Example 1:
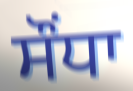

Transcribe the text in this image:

ਸੌਂਧਾ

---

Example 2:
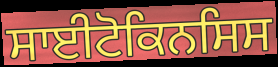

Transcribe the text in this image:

ਸਾਈਟੋਕਿਨਸਿਸ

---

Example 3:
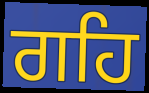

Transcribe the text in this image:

ਗਹਿ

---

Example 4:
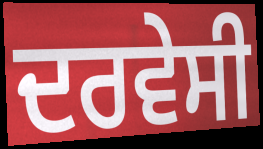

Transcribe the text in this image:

ਦਰਵੇਸੀ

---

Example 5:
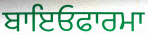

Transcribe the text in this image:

ਬਾਇਓਫਾਰਮਾ